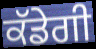
ਕੱਡੇਗੀ